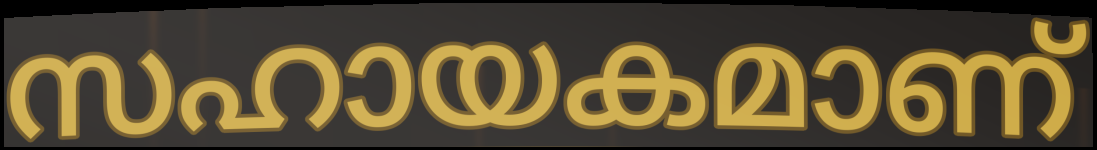
സഹായകമാണ്